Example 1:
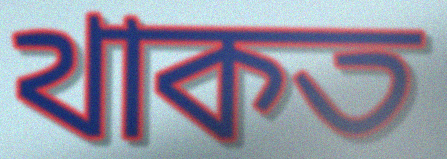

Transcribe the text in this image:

থাকত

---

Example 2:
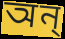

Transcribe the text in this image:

অন্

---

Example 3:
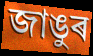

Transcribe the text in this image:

জাঙুৰ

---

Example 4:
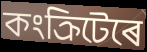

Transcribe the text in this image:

কংক্ৰিটেৰে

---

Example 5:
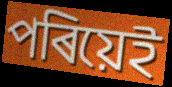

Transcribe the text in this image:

পৰিয়েই